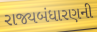
રાજ્યબંધારણની